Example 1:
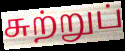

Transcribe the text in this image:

சுற்றுப்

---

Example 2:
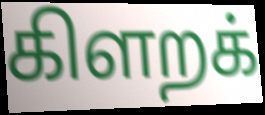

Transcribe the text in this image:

கிளறக்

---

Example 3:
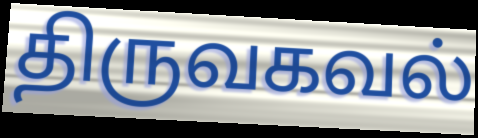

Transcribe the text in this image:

திருவகவல்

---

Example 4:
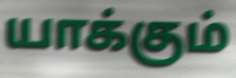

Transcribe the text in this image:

யாக்கும்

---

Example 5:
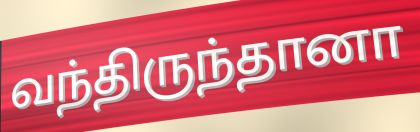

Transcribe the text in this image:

வந்திருந்தானா